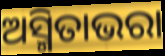
ଅସ୍ମିତାଭରା